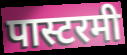
पास्टरमी